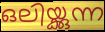
ഒലിയ്ക്കുന്ന